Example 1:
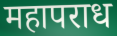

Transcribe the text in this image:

महापराध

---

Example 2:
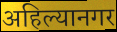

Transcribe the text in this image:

अहिल्यानगर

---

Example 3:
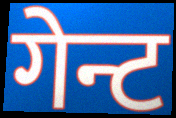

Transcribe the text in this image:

गेन्ट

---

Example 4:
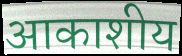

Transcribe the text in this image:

आकाशीय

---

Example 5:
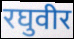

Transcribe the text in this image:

रघुवीर